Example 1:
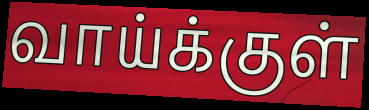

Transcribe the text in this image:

வாய்க்குள்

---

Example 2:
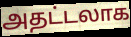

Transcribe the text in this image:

அதட்டலாக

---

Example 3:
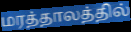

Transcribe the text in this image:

மரத்தாலத்தில்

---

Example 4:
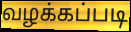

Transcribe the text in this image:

வழக்கப்படி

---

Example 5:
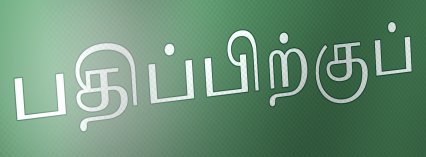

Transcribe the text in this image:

பதிப்பிற்குப்